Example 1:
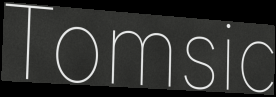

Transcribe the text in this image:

Tomsic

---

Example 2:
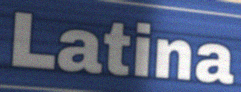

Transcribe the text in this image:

Latina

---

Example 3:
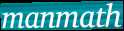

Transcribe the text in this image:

manmath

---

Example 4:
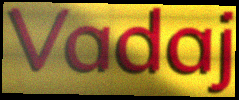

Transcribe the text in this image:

Vadaj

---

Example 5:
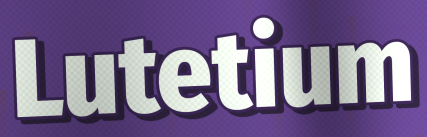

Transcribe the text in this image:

Lutetium